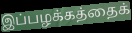
இப்பழக்கத்தைக்